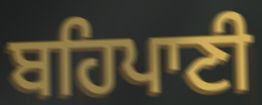
ਬਹਿਪਾਣੀ